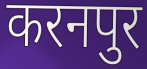
करनपुर